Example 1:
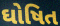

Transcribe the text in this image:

ઘોષિત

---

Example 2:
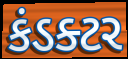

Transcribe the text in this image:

કંડક્ટર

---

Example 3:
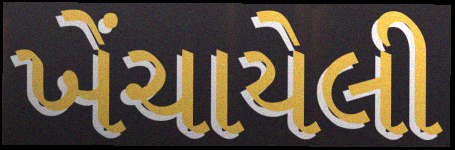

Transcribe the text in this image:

ખેંચાયેલી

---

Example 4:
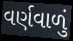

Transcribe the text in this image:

વર્ણવાળું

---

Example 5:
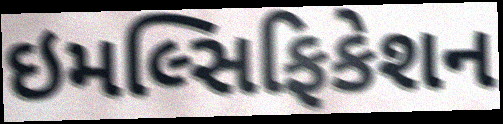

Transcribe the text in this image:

ઇમલ્સિફિકેશન